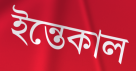
ইন্তেকাল